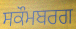
ਸਕੌਮਬਰਗ